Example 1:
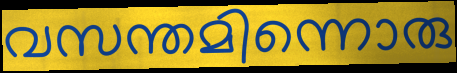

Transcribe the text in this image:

വസന്തമിന്നൊരു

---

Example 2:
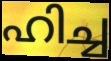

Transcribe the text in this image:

ഹിച്ച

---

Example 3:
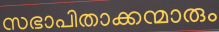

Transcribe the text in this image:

സഭാപിതാക്കന്മാരും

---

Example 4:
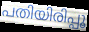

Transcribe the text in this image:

പതിയിരിപ്പൂ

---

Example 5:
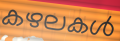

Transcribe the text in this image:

കഴലകൾ